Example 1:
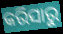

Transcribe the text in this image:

କରିସାରୁ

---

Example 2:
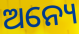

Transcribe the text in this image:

ଅନ୍ୟେ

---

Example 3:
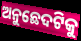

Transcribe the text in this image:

ଅନୁଛେଦଟିକୁ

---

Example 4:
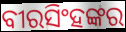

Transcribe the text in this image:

ବୀରସିଂହଙ୍କର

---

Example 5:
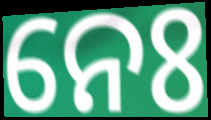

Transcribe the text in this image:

ନେଃ